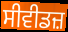
ਸੀਵੀਡਜ਼